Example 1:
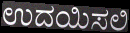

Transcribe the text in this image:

ಉದಯಿಸಲಿ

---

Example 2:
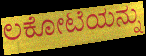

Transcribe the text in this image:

ಲಕೋಟೆಯನ್ನು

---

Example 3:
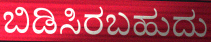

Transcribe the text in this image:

ಬಿಡಿಸಿರಬಹುದು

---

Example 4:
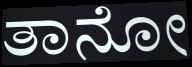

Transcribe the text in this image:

ತಾನೋ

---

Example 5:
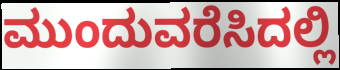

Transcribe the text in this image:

ಮುಂದುವರೆಸಿದಲ್ಲಿ